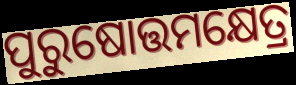
ପୁରୁଷୋତ୍ତମକ୍ଷେତ୍ର